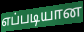
எப்படியான